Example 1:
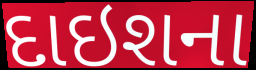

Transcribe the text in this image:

દાઇશના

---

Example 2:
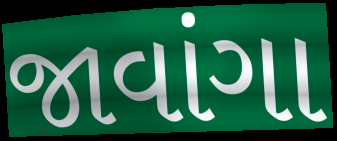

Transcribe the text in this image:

જાવાંગા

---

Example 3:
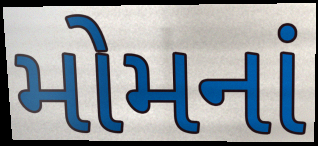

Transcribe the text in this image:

મોમનાં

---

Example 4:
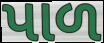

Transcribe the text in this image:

પાળ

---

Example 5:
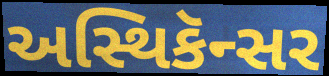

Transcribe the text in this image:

અસ્થિકૅન્સર